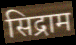
सिद्राम